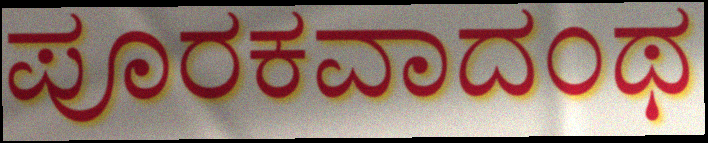
ಪೂರಕವಾದಂಥ